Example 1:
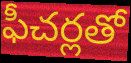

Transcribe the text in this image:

ఫీచర్లతో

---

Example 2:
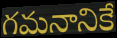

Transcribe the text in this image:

గమనానికే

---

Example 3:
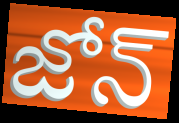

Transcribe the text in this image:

జోన్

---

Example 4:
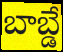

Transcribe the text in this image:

బాబ్డే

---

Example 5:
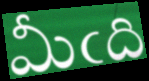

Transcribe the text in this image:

మీఁది